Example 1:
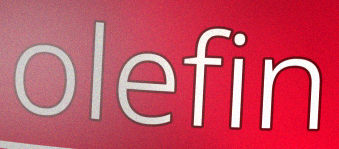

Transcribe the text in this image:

olefin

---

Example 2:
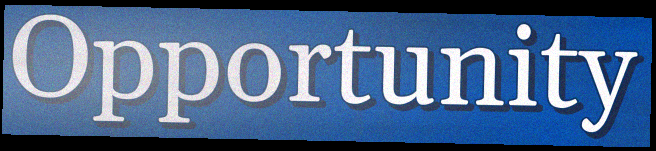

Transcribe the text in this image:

Opportunity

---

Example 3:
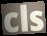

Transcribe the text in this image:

cls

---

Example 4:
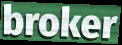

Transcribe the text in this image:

broker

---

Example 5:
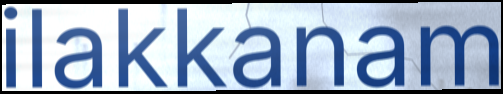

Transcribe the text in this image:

ilakkanam